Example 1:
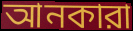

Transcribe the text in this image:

আনকারা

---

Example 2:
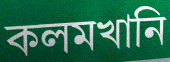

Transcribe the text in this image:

কলমখানি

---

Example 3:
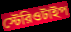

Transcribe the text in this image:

স্টেরিওটাইপ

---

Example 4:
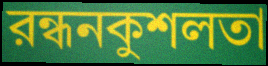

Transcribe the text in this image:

রন্ধনকুশলতা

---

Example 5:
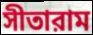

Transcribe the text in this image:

সীতারাম